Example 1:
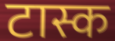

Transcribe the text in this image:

टास्क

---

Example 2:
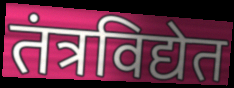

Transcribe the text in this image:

तंत्रविद्येत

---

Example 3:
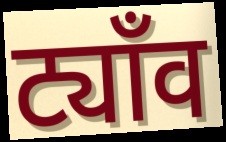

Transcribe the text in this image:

ट्याँव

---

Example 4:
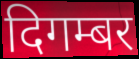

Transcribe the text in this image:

दिगम्बर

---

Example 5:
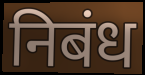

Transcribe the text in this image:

निबंध